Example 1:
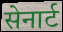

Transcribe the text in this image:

सेनार्ट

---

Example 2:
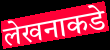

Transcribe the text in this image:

लेखनाकडे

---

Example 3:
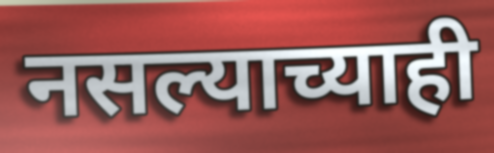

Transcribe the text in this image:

नसल्याच्याही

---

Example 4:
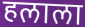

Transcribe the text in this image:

हलाला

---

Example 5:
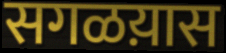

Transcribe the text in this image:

सगळय़ास